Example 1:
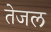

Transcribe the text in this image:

तेजल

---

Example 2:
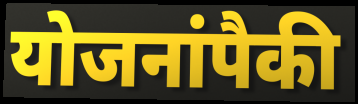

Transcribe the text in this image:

योजनांपैकी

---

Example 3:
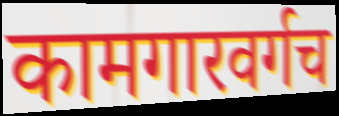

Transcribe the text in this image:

कामगारवर्गच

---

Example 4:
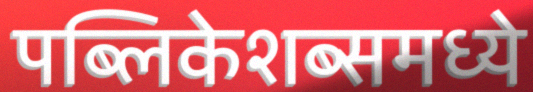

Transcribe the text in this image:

पब्लिकेशब्समध्ये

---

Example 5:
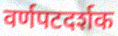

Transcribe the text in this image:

वर्णपटदर्शक